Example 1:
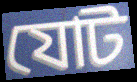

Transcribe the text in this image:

যোট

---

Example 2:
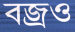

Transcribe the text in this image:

বজ্রও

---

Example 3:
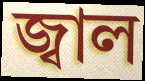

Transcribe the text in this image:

জ্বাল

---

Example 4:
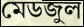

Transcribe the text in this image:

মেডজুল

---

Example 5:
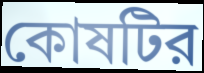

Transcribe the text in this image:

কোষটির